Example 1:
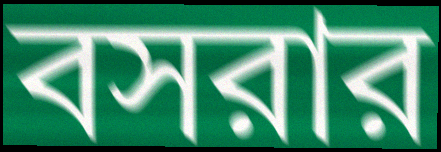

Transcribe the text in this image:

বসরার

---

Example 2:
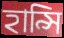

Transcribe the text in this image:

হান্সি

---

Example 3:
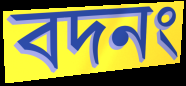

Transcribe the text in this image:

বদনং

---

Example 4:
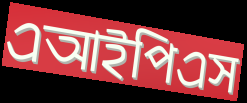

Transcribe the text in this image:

এআইপিএস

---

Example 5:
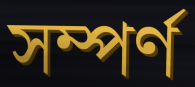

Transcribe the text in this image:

সম্পর্ণ